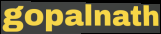
gopalnath